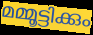
മമ്മൂട്ടിക്കും